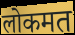
लोकमत